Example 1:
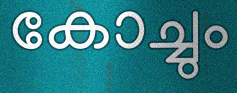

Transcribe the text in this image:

കോച്ചും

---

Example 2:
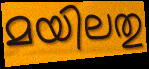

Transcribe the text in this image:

മയിലതു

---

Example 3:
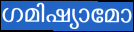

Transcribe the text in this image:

ഗമിഷ്യാമോ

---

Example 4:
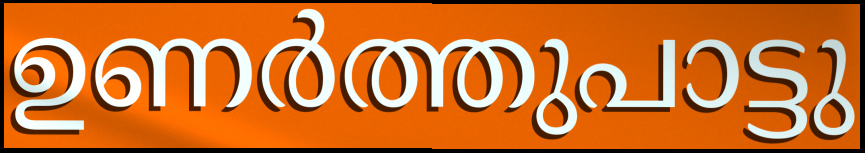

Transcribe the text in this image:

ഉണർത്തുപാട്ടു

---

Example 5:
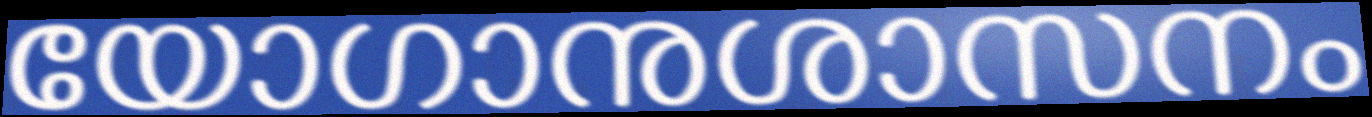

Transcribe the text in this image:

യോഗാനുശാസനം